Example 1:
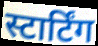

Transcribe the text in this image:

स्टार्टिंग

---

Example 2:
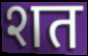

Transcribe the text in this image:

शत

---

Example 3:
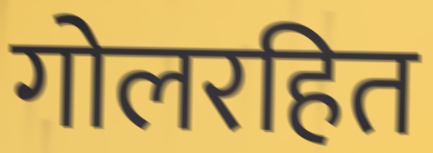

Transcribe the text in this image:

गोलरहित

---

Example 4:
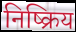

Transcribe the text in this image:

निष्क्रिय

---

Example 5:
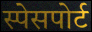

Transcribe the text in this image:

स्पेसपोर्ट